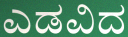
ಎಡವಿದ